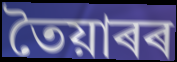
তৈয়াৰৰ